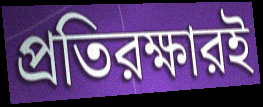
প্রতিরক্ষারই